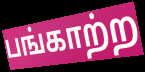
பங்காற்ற